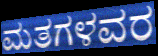
ಮತಗಳವರ